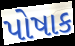
પોષાક